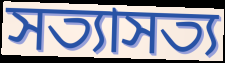
সত্যাসত্য